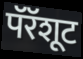
पॅरॅशूट